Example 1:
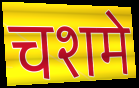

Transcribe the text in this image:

चशमे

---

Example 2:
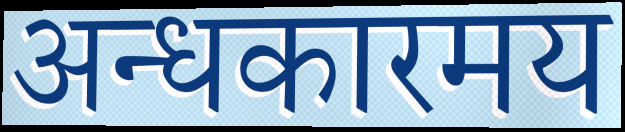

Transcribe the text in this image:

अन्धकारमय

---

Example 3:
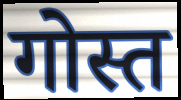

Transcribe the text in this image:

गोस्त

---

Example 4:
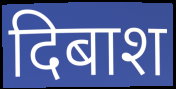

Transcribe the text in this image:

दिबाश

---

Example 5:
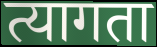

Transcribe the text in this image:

त्यागता